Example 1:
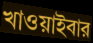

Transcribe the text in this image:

খাওয়াইবার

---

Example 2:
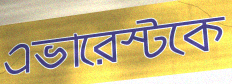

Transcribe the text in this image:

এভারেস্টকে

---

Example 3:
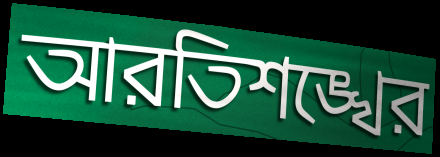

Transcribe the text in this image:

আরতিশঙ্খের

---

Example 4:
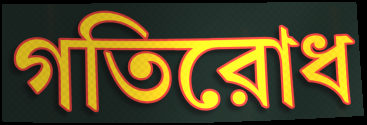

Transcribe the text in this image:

গতিরোধ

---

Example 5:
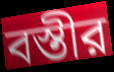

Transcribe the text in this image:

বস্তীর